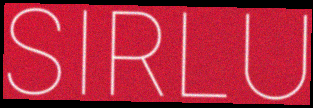
SIRLU